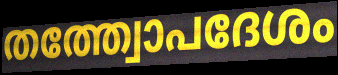
തത്ത്വോപദേശം